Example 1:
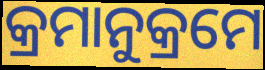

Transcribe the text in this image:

କ୍ରମାନୁକ୍ରମେ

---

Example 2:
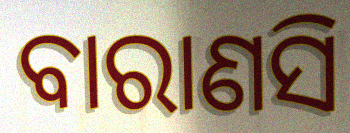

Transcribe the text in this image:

ବାରାଣସି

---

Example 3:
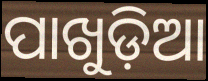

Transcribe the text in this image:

ପାଖୁଡ଼ିଆ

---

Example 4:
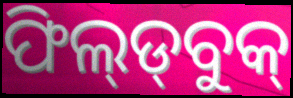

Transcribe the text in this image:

ଫିଲ୍‍ଡ୍‍ବୁକ୍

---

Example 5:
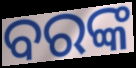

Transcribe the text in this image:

ବରଙ୍କ